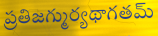
ప్రతిజగ్ముర్యథాగతమ్